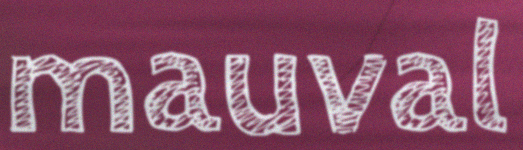
mauval